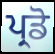
ਪ੍ਰਡੋ